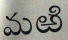
మఱి